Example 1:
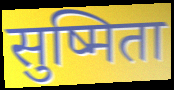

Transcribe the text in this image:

सुष्मिता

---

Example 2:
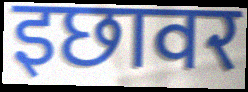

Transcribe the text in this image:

इछावर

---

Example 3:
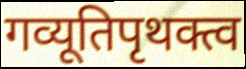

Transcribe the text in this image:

गव्यूतिपृथक्त्व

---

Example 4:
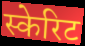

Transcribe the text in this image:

स्केरिट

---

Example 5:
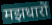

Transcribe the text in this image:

मझधारों